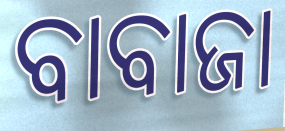
ବାବାଜା